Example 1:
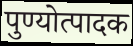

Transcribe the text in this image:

पुण्योत्पादक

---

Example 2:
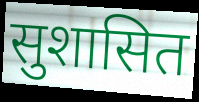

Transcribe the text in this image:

सुशासित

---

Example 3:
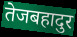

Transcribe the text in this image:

तेजबहादुर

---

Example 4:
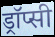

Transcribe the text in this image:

ड्रॉप्सी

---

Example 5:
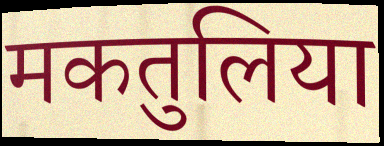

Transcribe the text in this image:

मकतुलिया